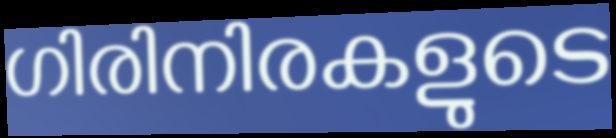
ഗിരിനിരകളുടെ